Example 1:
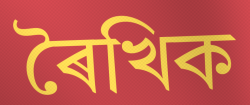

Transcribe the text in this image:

ৰৈখিক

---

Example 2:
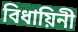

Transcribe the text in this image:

বিধায়িনী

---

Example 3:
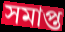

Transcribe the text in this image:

সমাপ্ত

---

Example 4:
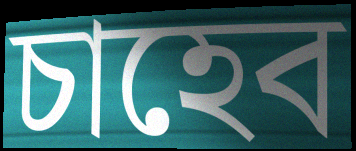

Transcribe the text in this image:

চাহেব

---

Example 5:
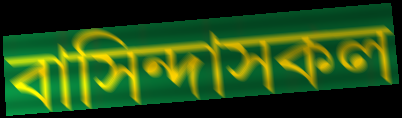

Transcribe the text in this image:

বাসিন্দাসকল